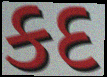
કદ